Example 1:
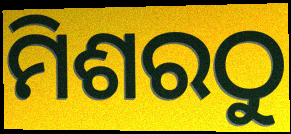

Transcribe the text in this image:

ମିଶରଠୁ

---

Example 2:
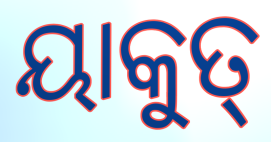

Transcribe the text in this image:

ୟାକୁତ୍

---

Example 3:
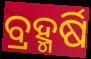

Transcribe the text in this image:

ବ୍ରହ୍ମର୍ଷି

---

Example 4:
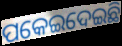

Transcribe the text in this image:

ପକେଇଦେଇଛି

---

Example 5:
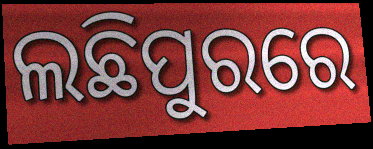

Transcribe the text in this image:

ଲଛିପୁରରେ